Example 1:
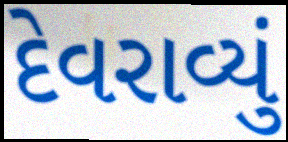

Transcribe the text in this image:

દેવરાવ્યું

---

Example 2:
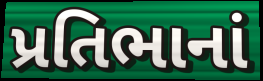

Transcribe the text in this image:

પ્રતિભાનાં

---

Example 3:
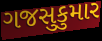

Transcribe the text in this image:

ગજસુકુમાર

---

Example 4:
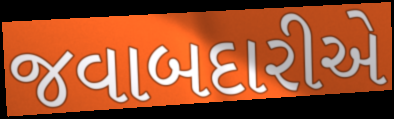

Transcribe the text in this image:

જવાબદારીએ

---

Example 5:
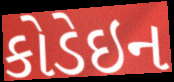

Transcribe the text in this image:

કોડેઇન